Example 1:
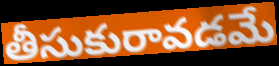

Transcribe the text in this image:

తీసుకురావడమే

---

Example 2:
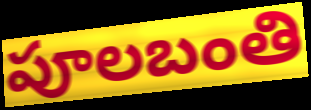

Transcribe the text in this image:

పూలబంతి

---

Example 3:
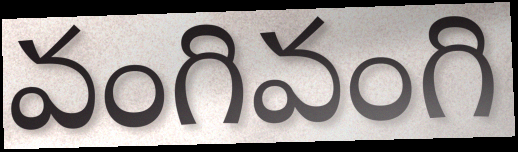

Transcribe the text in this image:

వంగివంగి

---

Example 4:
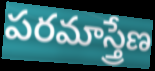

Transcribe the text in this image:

పరమాస్త్రేణ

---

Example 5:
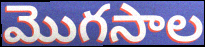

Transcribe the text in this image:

మొగసాల